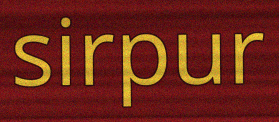
sirpur